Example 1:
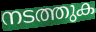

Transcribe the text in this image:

നടത്തുക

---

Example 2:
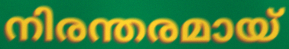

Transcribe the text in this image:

നിരന്തരമായ്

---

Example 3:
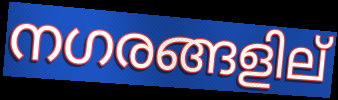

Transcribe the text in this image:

നഗരങ്ങളില്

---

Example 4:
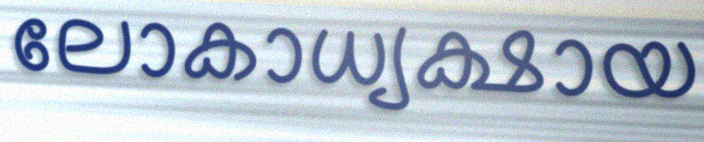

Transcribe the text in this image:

ലോകാധ്യക്ഷായ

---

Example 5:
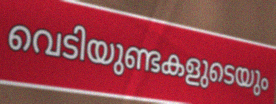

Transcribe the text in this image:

വെടിയുണ്ടകളുടെയും